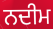
ਨਦੀਮ